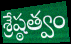
శ్రేష్ఠత్వం